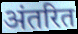
अंतरित